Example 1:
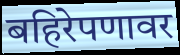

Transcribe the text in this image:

बहिरेपणावर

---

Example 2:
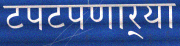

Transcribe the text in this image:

टपटपणार्या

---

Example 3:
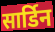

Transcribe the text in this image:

सार्डिन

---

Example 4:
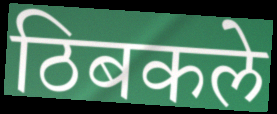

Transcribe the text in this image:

ठिबकले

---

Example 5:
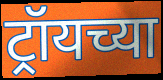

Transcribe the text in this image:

ट्रॉयच्या